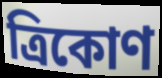
ত্রিকোণ